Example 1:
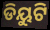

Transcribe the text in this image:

ଡିୟୁଟି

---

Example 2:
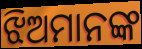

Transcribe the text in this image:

ଝିଅମାନଙ୍କ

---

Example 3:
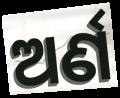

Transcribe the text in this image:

ଅର୍ଣ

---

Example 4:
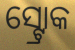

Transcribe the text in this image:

ସ୍ଟ୍ରୋକ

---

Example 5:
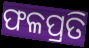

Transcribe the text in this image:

ଫଳପ୍ରତି